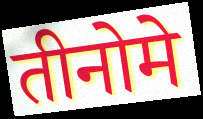
तीनोमे